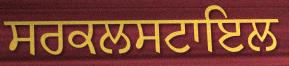
ਸਰਕਲਸਟਾਇਲ